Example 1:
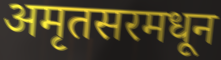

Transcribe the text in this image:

अमृतसरमधून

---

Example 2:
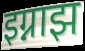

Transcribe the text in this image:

इग्नाझ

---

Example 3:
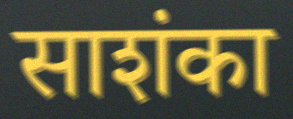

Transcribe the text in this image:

साशंका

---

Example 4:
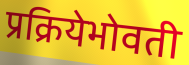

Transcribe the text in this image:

प्रक्रियेभोवती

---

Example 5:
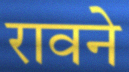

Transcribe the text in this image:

रावने